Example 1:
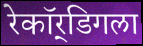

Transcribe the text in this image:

रेकॉर्डिगला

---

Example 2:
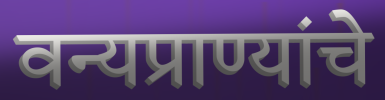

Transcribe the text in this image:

वन्यप्राण्यांचे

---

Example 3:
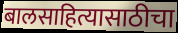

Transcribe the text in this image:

बालसाहित्यासाठीचा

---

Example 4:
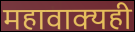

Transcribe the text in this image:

महावाक्यही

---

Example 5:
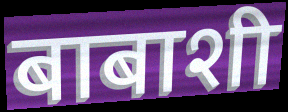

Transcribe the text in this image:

बाबाशी